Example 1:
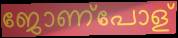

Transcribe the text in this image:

ജോണ്പോള്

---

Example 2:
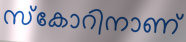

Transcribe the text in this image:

സ്കോറിനാണ്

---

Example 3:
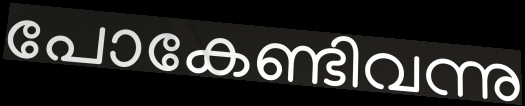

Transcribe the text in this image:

പോകേണ്ടിവന്നു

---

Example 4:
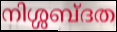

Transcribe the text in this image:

നിശ്ശബ്ദത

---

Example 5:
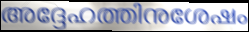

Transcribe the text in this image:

അദ്ദേഹത്തിനുശേഷം